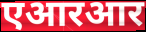
एआरआर